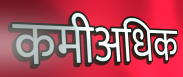
कमीअधिक